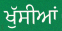
ਖੁੱਸੀਆਂ